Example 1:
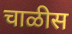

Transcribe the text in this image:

चाळीस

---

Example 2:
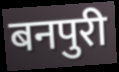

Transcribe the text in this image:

बनपुरी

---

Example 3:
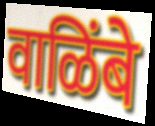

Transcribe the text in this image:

वाळिंबे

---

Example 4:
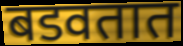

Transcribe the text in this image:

बडवतात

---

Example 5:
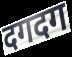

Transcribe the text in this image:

दगदग